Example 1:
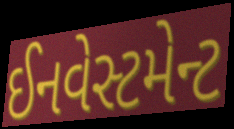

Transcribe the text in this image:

ઈનવેસ્ટમેન્ટ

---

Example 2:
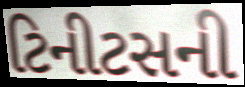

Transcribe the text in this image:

ટિનીટસની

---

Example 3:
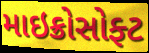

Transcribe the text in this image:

માઇક્રોસોફ્ટ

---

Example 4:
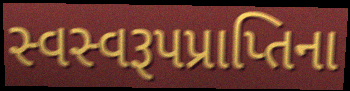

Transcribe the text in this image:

સ્વસ્વરૂપપ્રાપ્તિના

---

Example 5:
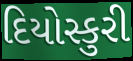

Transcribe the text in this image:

દિયોસ્કુરી